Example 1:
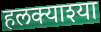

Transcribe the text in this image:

हलक्याश्या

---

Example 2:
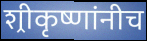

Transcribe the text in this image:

श्रीकृष्णांनीच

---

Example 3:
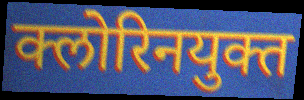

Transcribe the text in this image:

क्लोरिनयुक्त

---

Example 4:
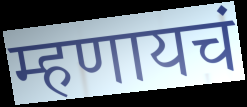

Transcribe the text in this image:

म्हणायचं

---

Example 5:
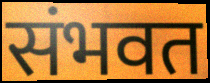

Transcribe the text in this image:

संभवत